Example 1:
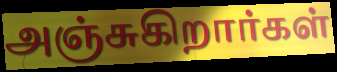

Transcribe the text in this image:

அஞ்சுகிறார்கள்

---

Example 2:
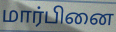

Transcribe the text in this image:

மார்பினை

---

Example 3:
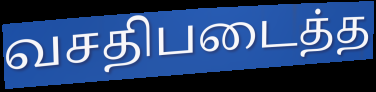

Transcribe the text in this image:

வசதிபடைத்த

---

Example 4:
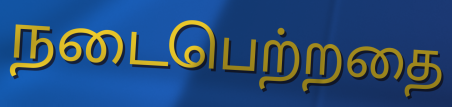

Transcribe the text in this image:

நடைபெற்றதை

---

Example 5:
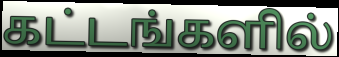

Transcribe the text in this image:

கட்டங்களில்